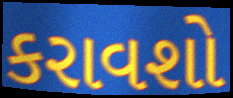
કરાવશો